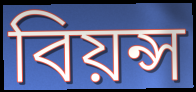
বিয়ন্স